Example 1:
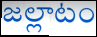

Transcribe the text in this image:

జల్లాటం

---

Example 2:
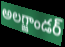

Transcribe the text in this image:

అలగ్జాండర్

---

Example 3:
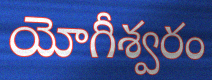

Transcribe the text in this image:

యోగీశ్వరం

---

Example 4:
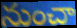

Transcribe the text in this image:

నుంచా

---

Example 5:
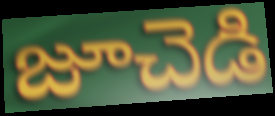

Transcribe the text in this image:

జూచెడి